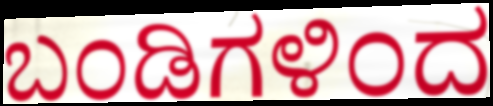
ಬಂಡಿಗಳಿಂದ